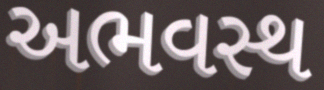
અભવસ્થ